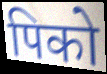
पिको